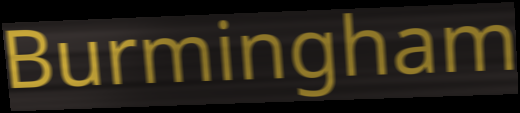
Burmingham